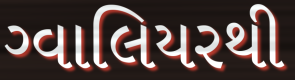
ગ્વાલિયરથી